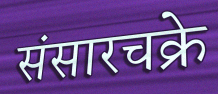
संसारचक्रे